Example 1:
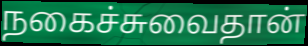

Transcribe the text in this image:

நகைச்சுவைதான்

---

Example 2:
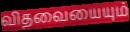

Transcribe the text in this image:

விதவையையும்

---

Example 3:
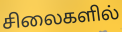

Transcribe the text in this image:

சிலைகளில்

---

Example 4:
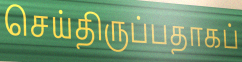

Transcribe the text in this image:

செய்திருப்பதாகப்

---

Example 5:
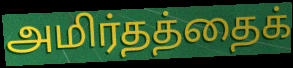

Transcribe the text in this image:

அமிர்தத்தைக்